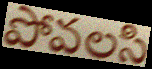
పోవలసి